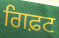
ਗਿਫ਼ਟ